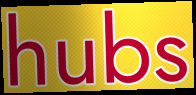
hubs